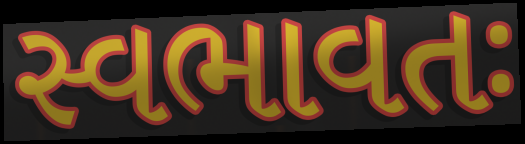
સ્વભાવતઃ